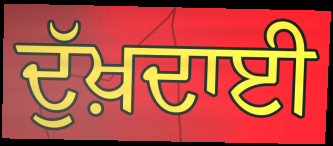
ਦੁੱਖ਼ਦਾਈ